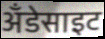
अँडेसाइट